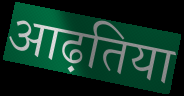
आढ़तिया